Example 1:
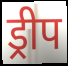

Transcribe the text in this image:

ड्रीप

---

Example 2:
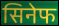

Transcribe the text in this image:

सिनेफ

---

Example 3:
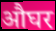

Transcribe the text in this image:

औघर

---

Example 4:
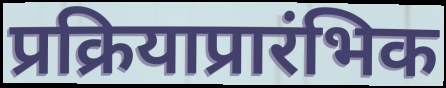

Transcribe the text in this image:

प्रक्रियाप्रारंभिक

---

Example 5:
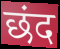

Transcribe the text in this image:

छंद